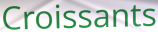
Croissants